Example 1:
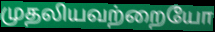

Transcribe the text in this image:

முதலியவற்றையோ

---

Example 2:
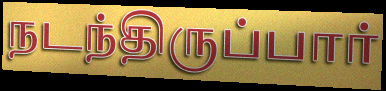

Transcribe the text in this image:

நடந்திருப்பார்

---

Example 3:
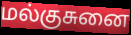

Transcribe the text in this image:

மல்குசுனை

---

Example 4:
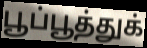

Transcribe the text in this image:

பூப்பூத்துக்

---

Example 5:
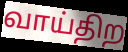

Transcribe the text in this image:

வாய்திற